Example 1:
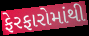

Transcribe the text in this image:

ફેરફારોમાંથી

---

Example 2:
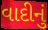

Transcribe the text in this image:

વાદીનું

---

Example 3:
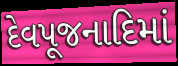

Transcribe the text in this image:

દેવપૂજનાદિમાં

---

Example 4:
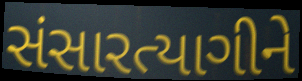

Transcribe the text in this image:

સંસારત્યાગીને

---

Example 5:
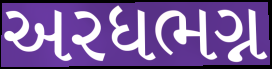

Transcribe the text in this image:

અરધભગ્ન